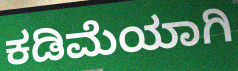
ಕಡಿಮೆಯಾಗಿ